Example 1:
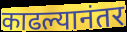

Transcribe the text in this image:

काढल्यानंतर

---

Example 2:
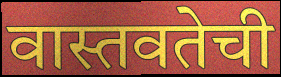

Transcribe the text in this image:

वास्तवतेची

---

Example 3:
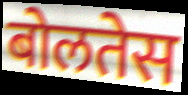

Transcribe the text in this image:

बोलतेस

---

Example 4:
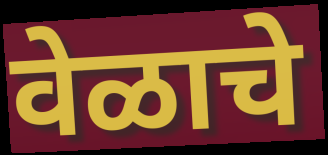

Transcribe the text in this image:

वेळाचे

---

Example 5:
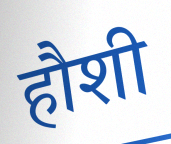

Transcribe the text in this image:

हौशी